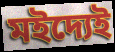
মইদ্যেই